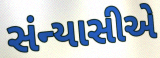
સંન્યાસીએ